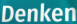
Denken